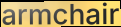
armchair